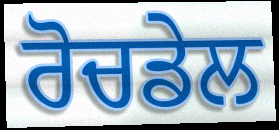
ਰੋਚਡੇਲ